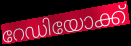
റേഡിയോക്ക്